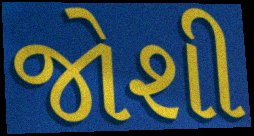
જોશી